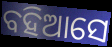
ବହିଆସେ